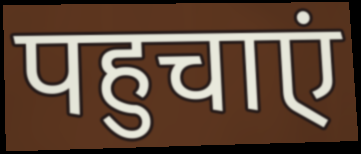
पहुचाएं